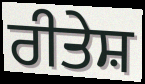
ਰੀਤੇਸ਼